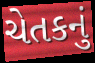
ચેતકનું